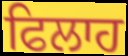
ਫਿਲਾਹ